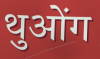
थुओंग